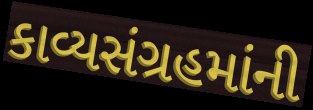
કાવ્યસંગ્રહમાંની